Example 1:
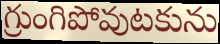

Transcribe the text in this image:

గ్రుంగిపోవుటకును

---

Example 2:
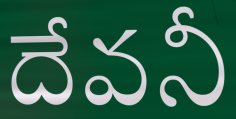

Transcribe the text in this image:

దేవనీ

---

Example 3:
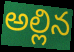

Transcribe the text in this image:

అల్లిన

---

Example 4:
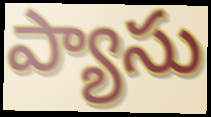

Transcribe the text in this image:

ప్యాసు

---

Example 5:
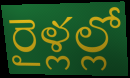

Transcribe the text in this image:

రైళ్లల్లో